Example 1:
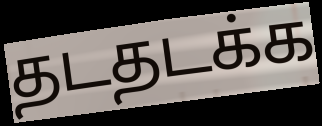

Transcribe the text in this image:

தடதடக்க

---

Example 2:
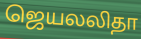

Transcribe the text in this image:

ஜெயலலிதா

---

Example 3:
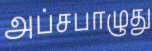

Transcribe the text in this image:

அப்சபாழுது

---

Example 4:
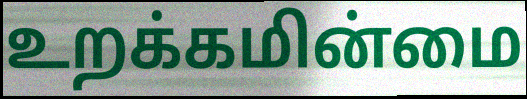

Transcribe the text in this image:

உறக்கமின்மை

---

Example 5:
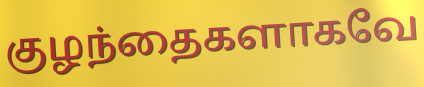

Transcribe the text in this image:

குழந்தைகளாகவே